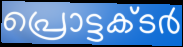
പ്രൊട്ടക്ടർ